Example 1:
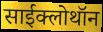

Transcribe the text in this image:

साईक्लोथॉन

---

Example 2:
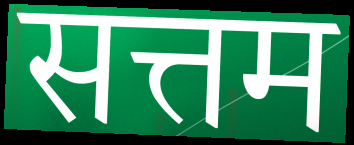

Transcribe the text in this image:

सत्तम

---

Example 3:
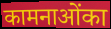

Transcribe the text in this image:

कामनाओंका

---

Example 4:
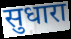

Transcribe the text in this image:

सुधारा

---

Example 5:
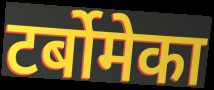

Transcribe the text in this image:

टर्बोमेका